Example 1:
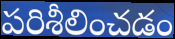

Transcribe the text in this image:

పరిశీలించడం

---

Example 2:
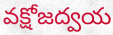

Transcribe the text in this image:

వక్షోజద్వయ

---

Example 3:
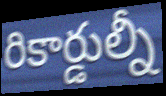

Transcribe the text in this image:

రికార్డుల్నీ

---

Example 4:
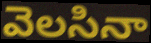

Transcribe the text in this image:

వెలసినా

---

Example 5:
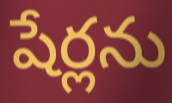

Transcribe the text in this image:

షేర్లను